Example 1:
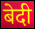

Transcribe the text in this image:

बेदी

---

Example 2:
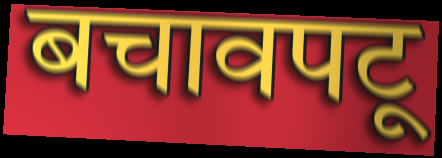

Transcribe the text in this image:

बचावपटू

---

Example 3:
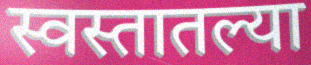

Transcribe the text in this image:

स्वस्तातल्या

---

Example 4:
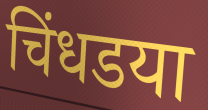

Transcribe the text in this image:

चिंधडया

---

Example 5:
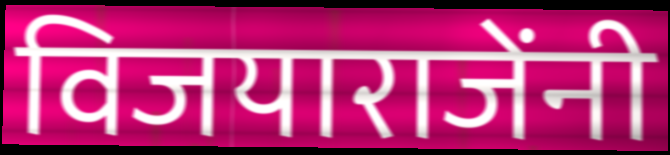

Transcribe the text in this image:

विजयाराजेंनी